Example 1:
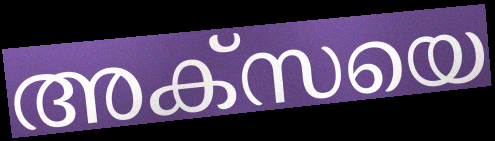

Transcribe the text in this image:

അക്സയെ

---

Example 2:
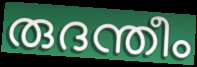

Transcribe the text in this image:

രുദന്തീം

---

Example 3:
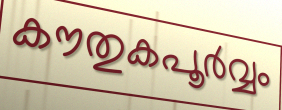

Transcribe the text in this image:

കൗതുകപൂർവ്വം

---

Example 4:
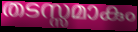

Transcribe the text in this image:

തടസ്സമാകും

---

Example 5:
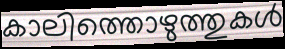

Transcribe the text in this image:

കാലിത്തൊഴുത്തുകൾ